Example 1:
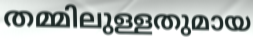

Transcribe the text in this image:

തമ്മിലുള്ളതുമായ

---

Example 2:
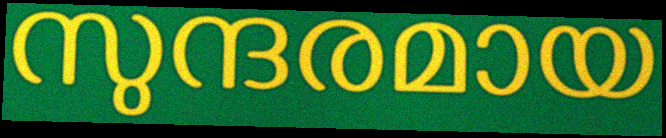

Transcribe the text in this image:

സുന്ദരമായ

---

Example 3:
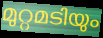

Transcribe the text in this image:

മുറ്റമടിയും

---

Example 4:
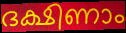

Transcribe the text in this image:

ദക്ഷിണാം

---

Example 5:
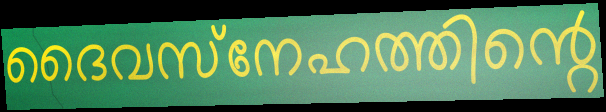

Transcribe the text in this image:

ദൈവസ്‌നേഹത്തിന്റെ